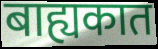
बाह्यकात